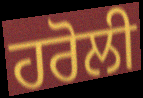
ਹਰੋਲੀ